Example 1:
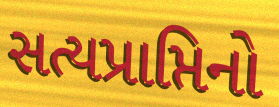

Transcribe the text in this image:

સત્યપ્રાપ્તિનો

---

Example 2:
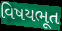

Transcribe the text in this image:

વિષયભૂત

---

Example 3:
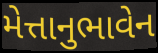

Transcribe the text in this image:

મેત્તાનુભાવેન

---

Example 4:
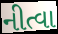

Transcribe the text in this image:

નીત્વા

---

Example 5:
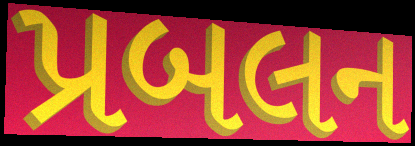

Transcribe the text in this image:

પ્રબલન